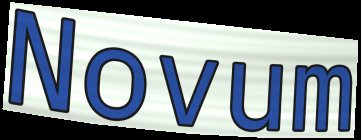
Novum